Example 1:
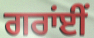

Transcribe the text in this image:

ਗਰਾਂਈਂ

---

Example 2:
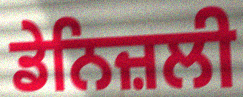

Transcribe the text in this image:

ਡੇਨਿਜ਼ਲੀ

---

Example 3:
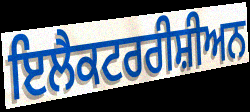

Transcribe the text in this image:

ਇਲੈਕਟਰਰੀਸ਼ੀਅਨ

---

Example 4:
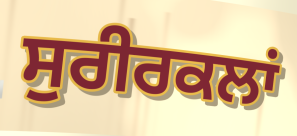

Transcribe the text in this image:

ਸੁਰੀਰਕਲਾਂ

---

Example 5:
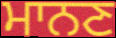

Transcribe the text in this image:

ਮਾਨਣ